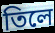
তিলে